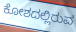
ಕೋಶದಲ್ಲಿರುವ